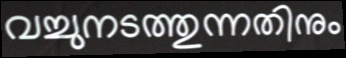
വച്ചുനടത്തുന്നതിനും